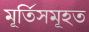
মূৰ্তিসমূহত